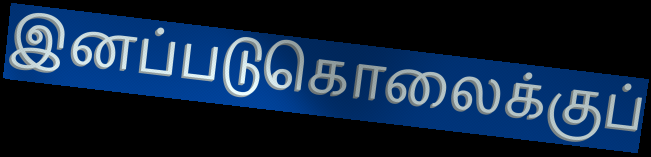
இனப்படுகொலைக்குப்